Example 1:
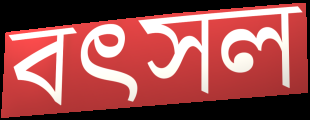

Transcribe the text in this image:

বৎসল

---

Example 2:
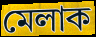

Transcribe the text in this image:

মেলাক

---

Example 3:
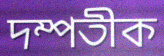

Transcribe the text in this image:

দম্পতীক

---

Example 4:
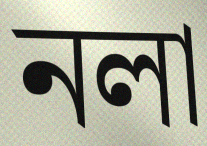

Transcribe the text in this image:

নলা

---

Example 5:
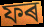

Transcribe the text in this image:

ফৰ